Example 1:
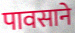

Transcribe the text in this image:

पावसाने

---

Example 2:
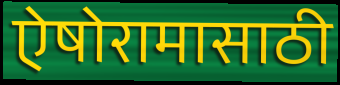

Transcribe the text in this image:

ऐषोरामासाठी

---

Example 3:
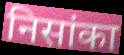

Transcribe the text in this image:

निसांका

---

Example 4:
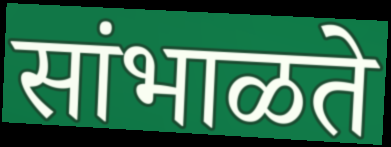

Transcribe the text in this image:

सांभाळते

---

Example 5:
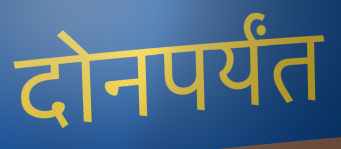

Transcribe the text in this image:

दोनपर्यंत